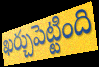
ఖర్చుపెట్టింది